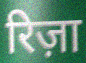
रिज़ा